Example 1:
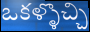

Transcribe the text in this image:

ఒకళ్ళొచ్చి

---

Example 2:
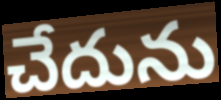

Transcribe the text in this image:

చేదును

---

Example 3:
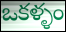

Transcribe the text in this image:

ఒకళ్ళం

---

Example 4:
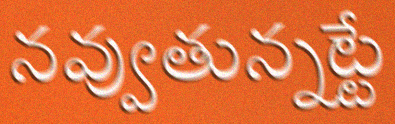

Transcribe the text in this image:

నవ్వుతున్నట్టే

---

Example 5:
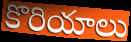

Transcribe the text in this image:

కొరియాలు